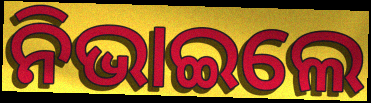
ନିଭାଇଲେ